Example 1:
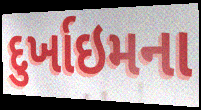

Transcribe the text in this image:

દુર્ખાઇમના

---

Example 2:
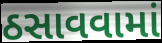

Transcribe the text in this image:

ઠસાવવામાં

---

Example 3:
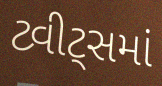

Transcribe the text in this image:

ટ્વીટ્સમાં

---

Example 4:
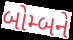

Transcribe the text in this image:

બોમ્બને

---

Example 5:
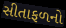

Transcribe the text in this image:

સીતાફળનો